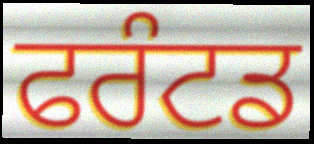
ਫਰੰਟਡ